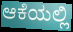
ಆಕೆಯಲ್ಲಿ